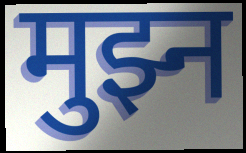
मुझ्न